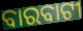
ବାରବାଟୀ